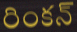
రింకన్